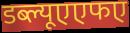
डब्ल्यूएएफए